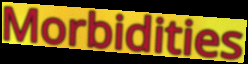
Morbidities